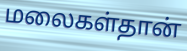
மலைகள்தான்